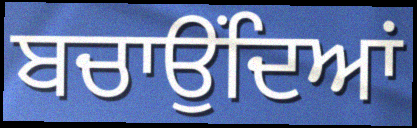
ਬਚਾਉਂਦਿਆਂ